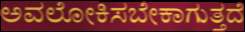
ಅವಲೋಕಿಸಬೇಕಾಗುತ್ತದೆ